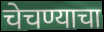
चेचण्याचा